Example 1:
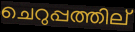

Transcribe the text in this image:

ചെറുപ്പത്തില്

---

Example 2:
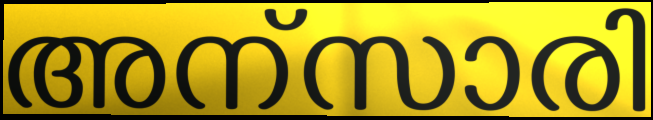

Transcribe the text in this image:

അന്സാരി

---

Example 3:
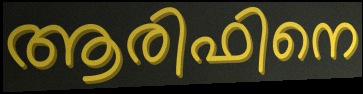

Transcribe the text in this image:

ആരിഫിനെ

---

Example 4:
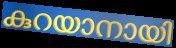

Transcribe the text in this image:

കുറയാനായി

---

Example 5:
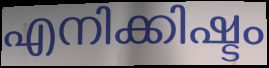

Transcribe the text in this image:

എനിക്കിഷ്ടം